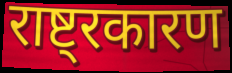
राष्ट्रकारण